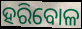
ହରିବୋଳ